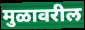
मुळावरील